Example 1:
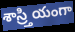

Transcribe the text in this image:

శాస్ర్తియంగా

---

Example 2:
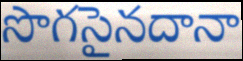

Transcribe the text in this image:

సొగసైనదానా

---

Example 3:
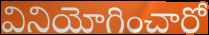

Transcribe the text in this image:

వినియోగించారో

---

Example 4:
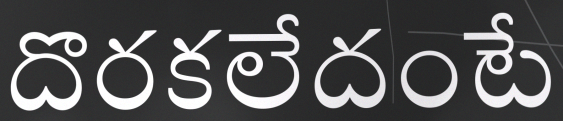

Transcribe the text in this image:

దొరకలేదంటే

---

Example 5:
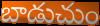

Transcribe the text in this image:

బాడుచుం